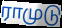
ராமுடு